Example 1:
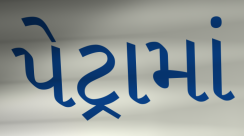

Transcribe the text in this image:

પેટ્રામાં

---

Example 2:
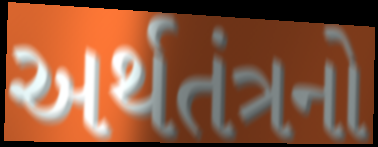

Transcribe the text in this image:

અર્થતંત્રનો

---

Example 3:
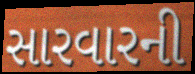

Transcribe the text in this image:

સારવારની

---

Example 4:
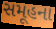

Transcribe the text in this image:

સમૂહના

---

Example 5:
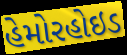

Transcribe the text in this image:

હેમોરહોઇડ